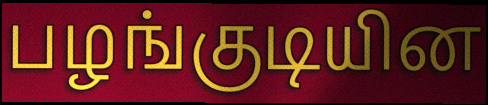
பழங்குடியின